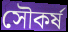
সৌকর্ষ